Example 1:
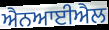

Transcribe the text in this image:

ਐਨਆਈਐਲ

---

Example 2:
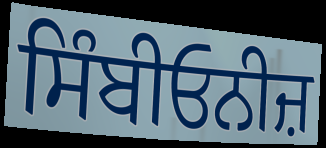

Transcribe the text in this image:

ਸਿੰਬੀਓਨੀਜ਼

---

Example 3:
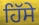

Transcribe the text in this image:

ਹਿੱਸੇ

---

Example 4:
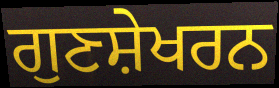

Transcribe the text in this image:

ਗੁਣਸ਼ੇਖਰਨ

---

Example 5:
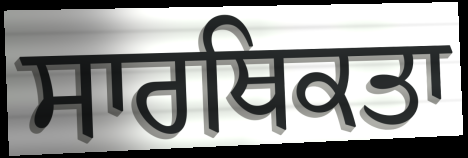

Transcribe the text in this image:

ਸਾਰਥਿਕਤਾ